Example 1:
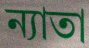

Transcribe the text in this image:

ন্যাতা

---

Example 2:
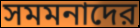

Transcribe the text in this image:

সমমনাদের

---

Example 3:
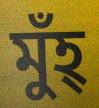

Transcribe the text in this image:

মুঁহ্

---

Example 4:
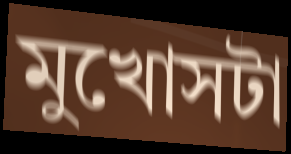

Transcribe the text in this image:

মুখোসটা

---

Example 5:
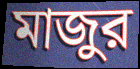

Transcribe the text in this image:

মাজুর